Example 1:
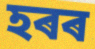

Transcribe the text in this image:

হৰৰ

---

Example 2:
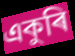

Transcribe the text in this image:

একুৰি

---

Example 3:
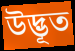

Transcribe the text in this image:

উদ্ভূত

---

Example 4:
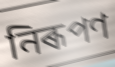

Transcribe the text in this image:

নিৰূপণ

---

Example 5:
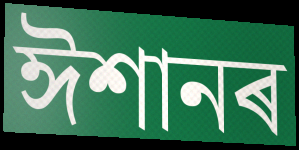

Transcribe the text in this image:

ঈশানৰ